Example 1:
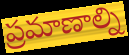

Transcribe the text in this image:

ప్రమాణాల్ని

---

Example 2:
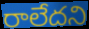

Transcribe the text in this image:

రాలేదని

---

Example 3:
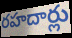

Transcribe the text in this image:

రహదార్లు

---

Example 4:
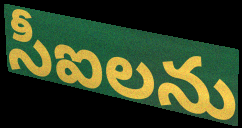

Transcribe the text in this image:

సీఐలను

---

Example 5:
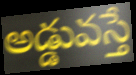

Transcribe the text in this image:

అడ్డువస్తే